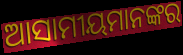
ଆସାମୀୟମାନଙ୍କର